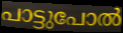
പാട്ടുപോൽ